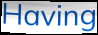
Having